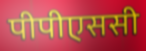
पीपीएससी